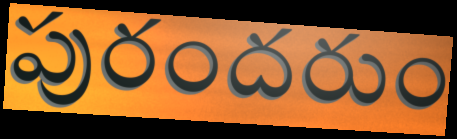
పురందరుం